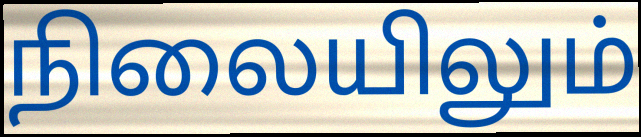
நிலையிலும்